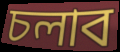
চলাব